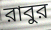
রাবুর